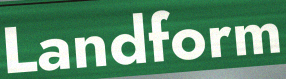
Landform